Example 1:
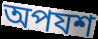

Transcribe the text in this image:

অপযশ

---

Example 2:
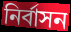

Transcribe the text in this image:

নিৰ্বাসন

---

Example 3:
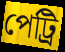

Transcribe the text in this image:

পেট্ৰি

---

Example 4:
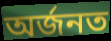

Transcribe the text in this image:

অৰ্জনত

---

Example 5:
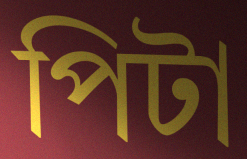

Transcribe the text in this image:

পিটা